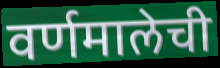
वर्णमालेची